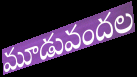
మూడువందల